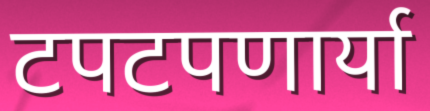
टपटपणार्या